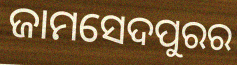
ଜାମସେଦପୁରର